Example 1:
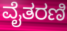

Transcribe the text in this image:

ವೈತರಣಿ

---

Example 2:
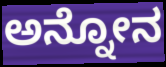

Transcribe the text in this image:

ಅನ್ನೋನ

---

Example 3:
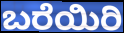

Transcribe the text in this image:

ಬರೆಯಿರಿ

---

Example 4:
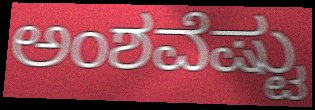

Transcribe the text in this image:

ಅಂಶವೆಷ್ಟು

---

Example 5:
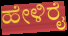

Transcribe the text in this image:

ಹೇಳಿರೈ